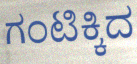
ಗಂಟಿಕ್ಕಿದ